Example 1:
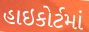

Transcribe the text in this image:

હાઇકોર્ટમાં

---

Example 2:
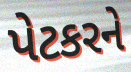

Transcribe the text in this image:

પેટકરને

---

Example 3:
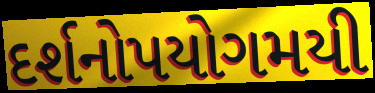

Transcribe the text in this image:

દર્શનોપયોગમયી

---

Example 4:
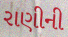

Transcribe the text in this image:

રાણીની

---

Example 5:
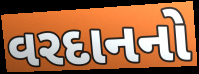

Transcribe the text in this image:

વરદાનનો